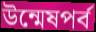
উন্মেষপর্ব